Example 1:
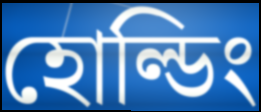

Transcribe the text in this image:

হোল্ডিং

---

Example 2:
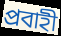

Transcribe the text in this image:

প্রবাহী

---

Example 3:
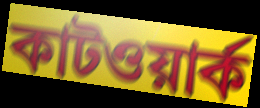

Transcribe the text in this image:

কাটওয়ার্ক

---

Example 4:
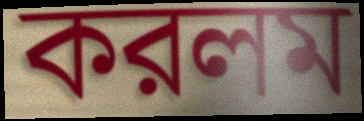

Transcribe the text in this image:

করলম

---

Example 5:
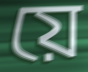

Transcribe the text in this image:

য়ে